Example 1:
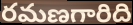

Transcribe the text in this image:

రమణగారిది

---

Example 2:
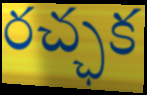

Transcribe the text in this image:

రచ్ఛక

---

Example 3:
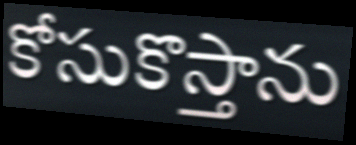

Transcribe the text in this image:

కోసుకొస్తాను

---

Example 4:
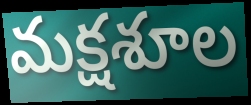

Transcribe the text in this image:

మక్షశూల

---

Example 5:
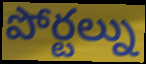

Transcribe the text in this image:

పోర్టల్ను